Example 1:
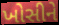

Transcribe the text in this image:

ખોસીને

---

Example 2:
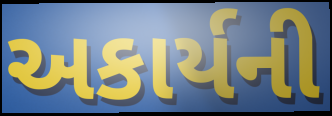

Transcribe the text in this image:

અકાર્યની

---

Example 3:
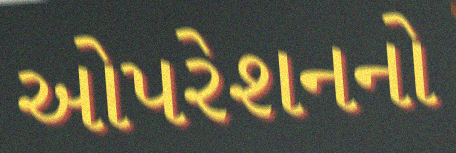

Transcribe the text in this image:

ઓપરેશનનો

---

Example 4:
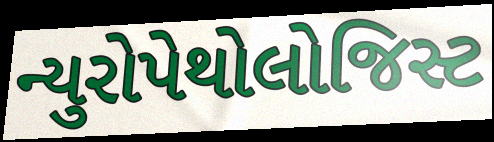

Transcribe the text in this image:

ન્યુરોપેથોલોજિસ્ટ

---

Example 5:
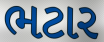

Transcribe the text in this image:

ભટાર